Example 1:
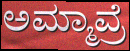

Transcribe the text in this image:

ಅಮ್ಮಾವ್ರೆ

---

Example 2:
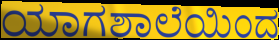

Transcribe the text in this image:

ಯಾಗಶಾಲೆಯಿಂದ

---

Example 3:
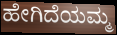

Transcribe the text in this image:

ಹೇಗಿದೆಯಮ್ಮ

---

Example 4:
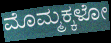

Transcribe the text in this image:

ಮೊಮ್ಮಕ್ಕಳೋ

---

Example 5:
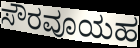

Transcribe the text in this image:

ಸೌರವೂಯಹ